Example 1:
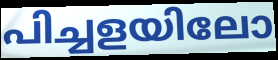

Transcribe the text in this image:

പിച്ചളയിലോ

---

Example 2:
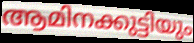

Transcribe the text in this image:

ആമിനക്കുട്ടിയും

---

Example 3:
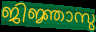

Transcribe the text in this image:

ജിജ്ഞാസു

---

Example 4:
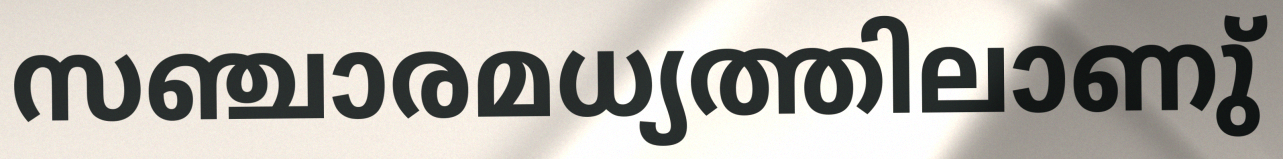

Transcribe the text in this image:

സഞ്ചാരമധ്യത്തിലാണു്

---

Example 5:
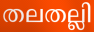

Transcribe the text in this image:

തലതല്ലി